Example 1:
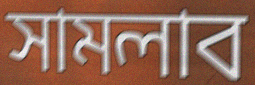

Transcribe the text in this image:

সামলাব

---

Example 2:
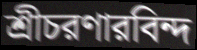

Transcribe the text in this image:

শ্রীচরণারবিন্দ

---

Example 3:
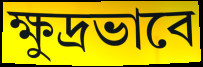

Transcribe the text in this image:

ক্ষুদ্রভাবে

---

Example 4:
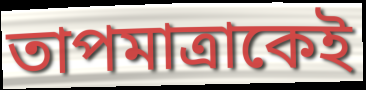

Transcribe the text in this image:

তাপমাত্রাকেই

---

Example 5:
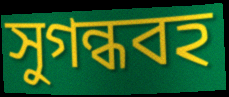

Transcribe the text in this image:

সুগন্ধবহ